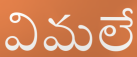
విమలే